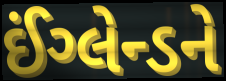
ઈંગ્લેન્ડને